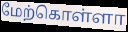
மேற்கொள்ளா